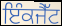
ਇੰਕਜੈੱਟ